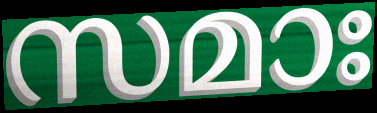
സമാഃ